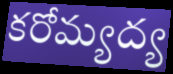
కరోమ్యద్య